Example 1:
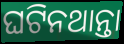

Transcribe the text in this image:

ଘଟିନଥାନ୍ତା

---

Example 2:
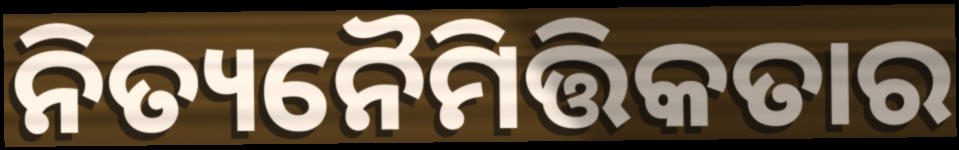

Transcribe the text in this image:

ନିତ୍ୟନୈମିତ୍ତିକତାର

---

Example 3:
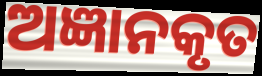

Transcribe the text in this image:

ଅଜ୍ଞାନକୃତ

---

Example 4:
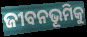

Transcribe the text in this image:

ଜୀବନଭୂମିକୁ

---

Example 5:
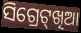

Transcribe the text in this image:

ସିଗ୍ରେଟ୍‌ଖିଆ